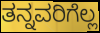
ತನ್ನವರಿಗೆಲ್ಲ